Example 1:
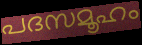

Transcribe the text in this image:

പദസമൂഹം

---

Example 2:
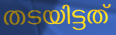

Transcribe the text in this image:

തടയിട്ടത്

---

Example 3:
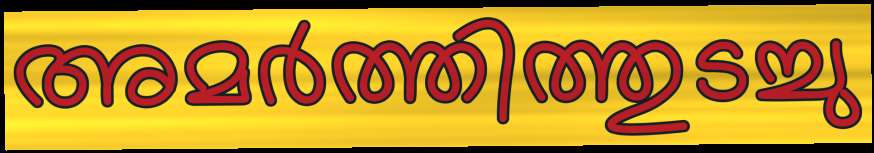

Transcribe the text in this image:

അമർത്തിത്തുടച്ചു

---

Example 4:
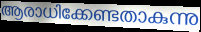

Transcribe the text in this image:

ആരാധിക്കേണ്ടതാകുന്നു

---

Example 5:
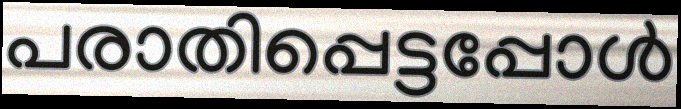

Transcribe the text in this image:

പരാതിപ്പെട്ടപ്പോൾ